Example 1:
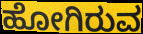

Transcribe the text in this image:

ಹೋಗಿರುವ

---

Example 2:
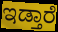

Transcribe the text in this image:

ಇಡ್ತಾರೆ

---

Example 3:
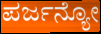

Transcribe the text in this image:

ಪರ್ಜನ್ಯೋ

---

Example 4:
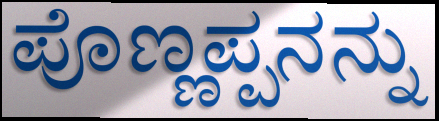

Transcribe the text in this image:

ಪೊಣ್ಣಪ್ಪನನ್ನು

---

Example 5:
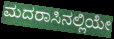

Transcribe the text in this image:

ಮದರಾಸಿನಲ್ಲಿಯೇ